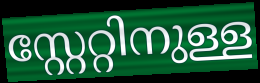
സ്റ്റേറ്റിനുള്ള